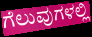
ಗೆಲುವುಗಳಲ್ಲಿ